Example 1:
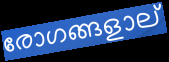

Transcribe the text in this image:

രോഗങ്ങളാല്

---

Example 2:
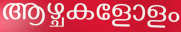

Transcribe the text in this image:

ആഴ്ചകളോളം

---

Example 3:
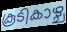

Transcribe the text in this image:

കൂടികാഴ്ച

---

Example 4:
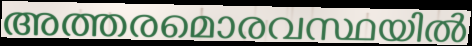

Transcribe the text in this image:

അത്തരമൊരവസ്ഥയിൽ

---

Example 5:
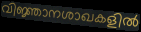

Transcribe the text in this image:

വിജ്ഞാനശാഖകളിൽ